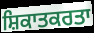
ਸ਼ਿਕਾਤਕਰਤਾ